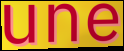
une